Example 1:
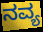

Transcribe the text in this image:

ನವ್ಯ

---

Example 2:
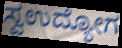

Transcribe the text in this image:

ಸ್ವಉದ್ಯೋಗ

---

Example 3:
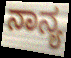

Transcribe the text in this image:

ನಾನ್ಯ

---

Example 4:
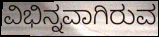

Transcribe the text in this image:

ವಿಭಿನ್ನವಾಗಿರುವ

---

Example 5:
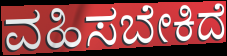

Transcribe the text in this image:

ವಹಿಸಬೇಕಿದೆ